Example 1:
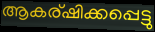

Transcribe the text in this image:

ആകര്ഷിക്കപ്പെട്ടു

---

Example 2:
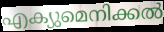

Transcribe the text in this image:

എക്യുമെനിക്കൽ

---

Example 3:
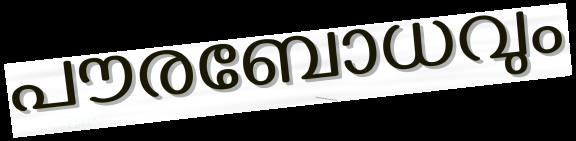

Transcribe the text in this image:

പൗരബോധവും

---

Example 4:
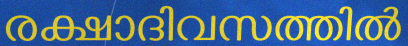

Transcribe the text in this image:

രക്ഷാദിവസത്തിൽ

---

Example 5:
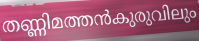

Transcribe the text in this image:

തണ്ണിമത്തൻകുരുവിലും